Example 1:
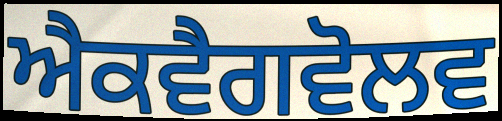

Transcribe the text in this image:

ਐਕਵੈਗਵੋਲਵ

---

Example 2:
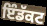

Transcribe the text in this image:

ਇੰਡੱਕਟ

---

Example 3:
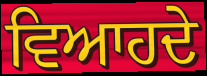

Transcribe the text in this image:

ਵਿਆਹਦੇ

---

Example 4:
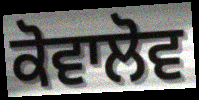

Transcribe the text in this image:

ਕੋਵਾਲੋਵ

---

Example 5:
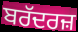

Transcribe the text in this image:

ਬਰੱਦਰਜ਼